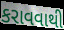
કરાવવાથી